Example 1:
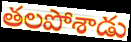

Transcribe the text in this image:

తలపోశాడు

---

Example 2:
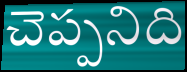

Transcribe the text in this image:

చెప్పనిది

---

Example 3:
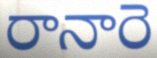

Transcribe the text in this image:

రానారె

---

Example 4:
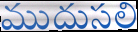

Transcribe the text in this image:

ముదుసలి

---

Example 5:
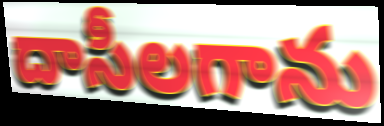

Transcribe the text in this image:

దాసీలగాను